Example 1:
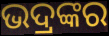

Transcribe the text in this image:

ଭଦ୍ରଙ୍କର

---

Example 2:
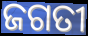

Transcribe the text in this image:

ଜଗତୀ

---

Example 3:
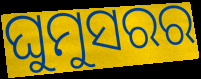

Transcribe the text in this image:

ଘୁମୁସରର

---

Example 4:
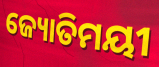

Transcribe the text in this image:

ଜ୍ୟୋତିମୟୀ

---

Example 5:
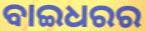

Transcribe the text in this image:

ବାଇଧରର